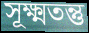
সূক্ষ্মতন্তু